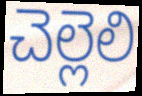
చెల్లెలి